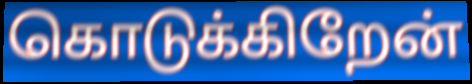
கொடுக்கிறேன்